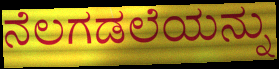
ನೆಲಗಡಲೆಯನ್ನು